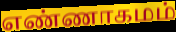
எண்ணாகமம்